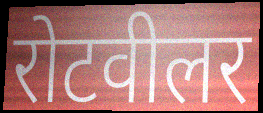
रोटवीलर